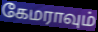
கேமராவும்